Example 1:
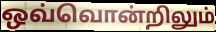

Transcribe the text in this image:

ஒவ்வொன்றிலும்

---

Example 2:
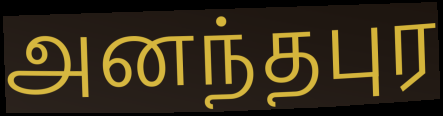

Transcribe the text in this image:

அனந்தபுர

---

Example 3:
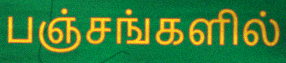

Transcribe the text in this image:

பஞ்சங்களில்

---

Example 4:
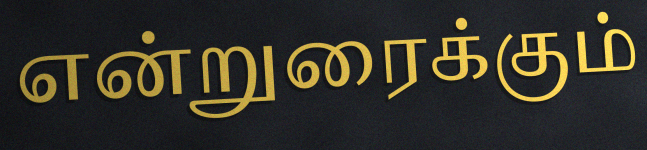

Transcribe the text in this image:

என்றுரைக்கும்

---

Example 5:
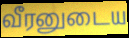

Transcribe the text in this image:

வீரனுடைய